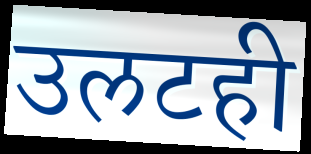
उलटही